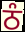
ਠੰ